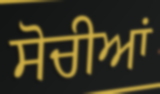
ਸੋਚੀਆਂ